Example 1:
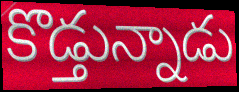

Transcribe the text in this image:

కొడ్తున్నాడు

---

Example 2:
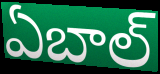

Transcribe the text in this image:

ఏబాల్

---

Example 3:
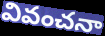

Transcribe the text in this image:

వివంచనా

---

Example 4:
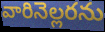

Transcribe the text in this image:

వారినెల్లరను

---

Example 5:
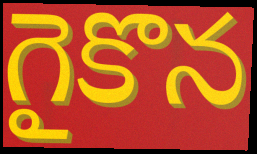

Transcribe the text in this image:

గైకొన